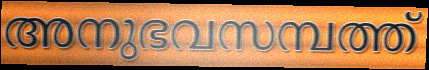
അനുഭവസമ്പത്ത്